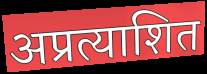
अप्रत्याशित